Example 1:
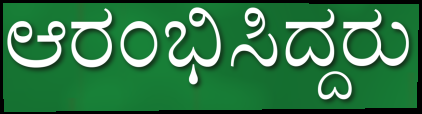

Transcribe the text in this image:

ಆರಂಭಿಸಿದ್ದರು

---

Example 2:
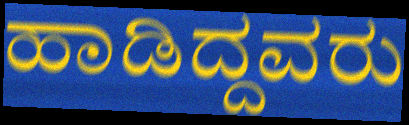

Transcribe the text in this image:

ಹಾಡಿದ್ದವರು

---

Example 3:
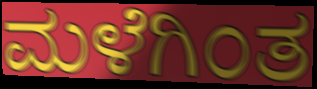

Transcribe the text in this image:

ಮಳೆಗಿಂತ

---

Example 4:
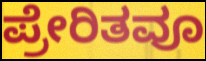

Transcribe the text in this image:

ಪ್ರೇರಿತವೂ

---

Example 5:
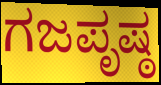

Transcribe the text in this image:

ಗಜಪೃಷ್ಠ